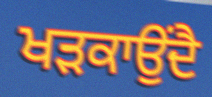
ਖੜਕਾਉਂਦੈ